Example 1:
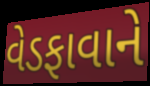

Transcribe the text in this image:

વેડફાવાને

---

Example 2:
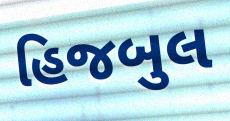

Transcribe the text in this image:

હિજબુલ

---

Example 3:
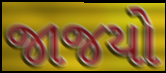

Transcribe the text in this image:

જાજયો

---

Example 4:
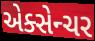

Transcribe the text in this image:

એક્સેન્ચર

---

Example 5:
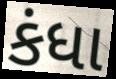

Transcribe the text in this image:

કંધા